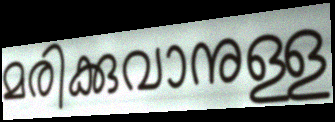
മരിക്കുവാനുള്ള